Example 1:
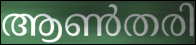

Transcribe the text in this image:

ആൺതരി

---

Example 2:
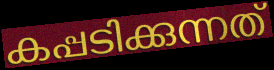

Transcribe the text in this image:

കപ്പടിക്കുന്നത്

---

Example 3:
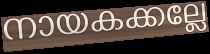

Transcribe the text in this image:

നായകക്കല്ലേ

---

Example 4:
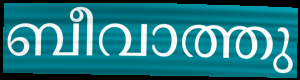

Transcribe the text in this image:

ബീവാത്തു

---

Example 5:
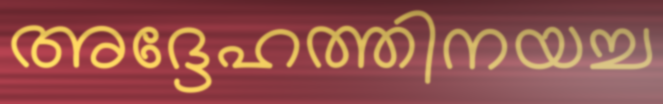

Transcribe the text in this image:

അദ്ദേഹത്തിനയച്ച